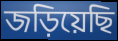
জড়িয়েছি